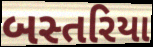
બસ્તરિયા